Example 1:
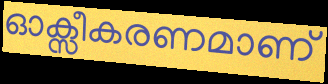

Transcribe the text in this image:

ഓക്സീകരണമാണ്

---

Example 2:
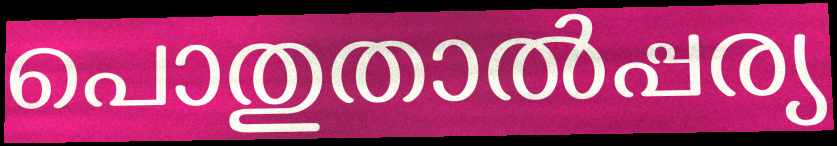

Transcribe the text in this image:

പൊതുതാൽപ്പര്യ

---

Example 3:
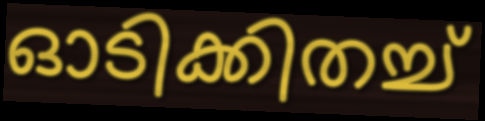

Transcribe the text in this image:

ഓടിക്കിതച്ച്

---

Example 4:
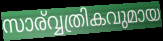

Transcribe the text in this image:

സാര്വ്വത്രികവുമായ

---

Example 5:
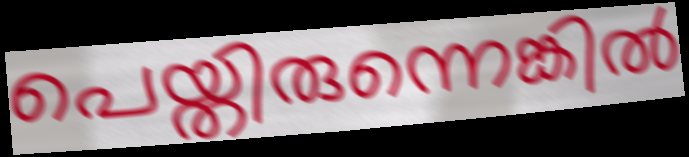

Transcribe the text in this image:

പെയ്തിരുന്നെങ്കിൽ